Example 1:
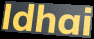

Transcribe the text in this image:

Idhai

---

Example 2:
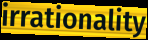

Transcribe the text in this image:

irrationality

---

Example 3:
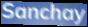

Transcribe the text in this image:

Sanchay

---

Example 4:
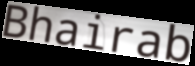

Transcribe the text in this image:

Bhairab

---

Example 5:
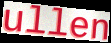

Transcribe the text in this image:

ullen